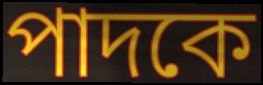
পাদকে